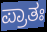
ಪ್ರಾತಃ